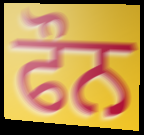
ਫੌਨ